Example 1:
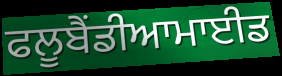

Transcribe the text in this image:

ਫਲੂਬੈਂਡੀਆਮਾਈਡ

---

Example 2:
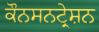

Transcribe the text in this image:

ਕੌਨਸਨਟ੍ਰੇਸ਼ਨ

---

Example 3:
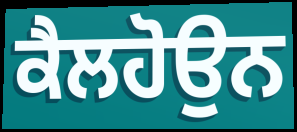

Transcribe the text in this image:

ਕੈਲਹੋਉਨ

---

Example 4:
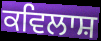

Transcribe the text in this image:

ਕਵਿਲਾਸ਼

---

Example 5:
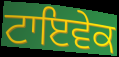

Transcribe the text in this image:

ਟਾਇਵੇਕ